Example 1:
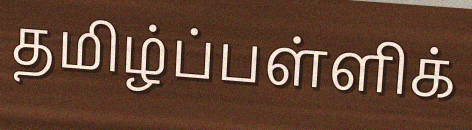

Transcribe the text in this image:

தமிழ்ப்பள்ளிக்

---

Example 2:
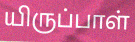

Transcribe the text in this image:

யிருப்பாள்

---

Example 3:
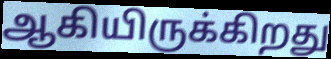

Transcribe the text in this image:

ஆகியிருக்கிறது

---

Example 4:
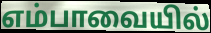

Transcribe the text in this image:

எம்பாவையில்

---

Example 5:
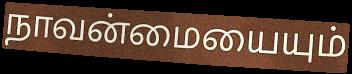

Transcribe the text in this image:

நாவன்மையையும்